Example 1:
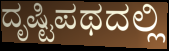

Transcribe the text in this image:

ದೃಷ್ಟಿಪಥದಲ್ಲಿ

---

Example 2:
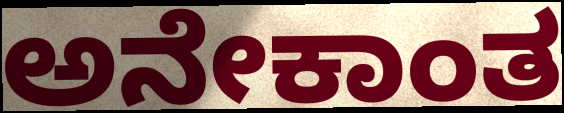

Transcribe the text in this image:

ಅನೇಕಾಂತ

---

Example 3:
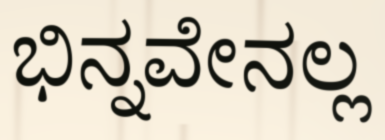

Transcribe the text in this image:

ಭಿನ್ನವೇನಲ್ಲ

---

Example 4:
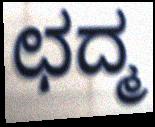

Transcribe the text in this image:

ಛದ್ಮ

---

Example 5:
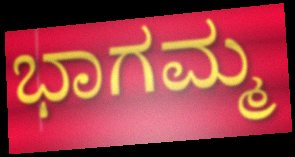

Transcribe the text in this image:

ಭಾಗಮ್ಮ